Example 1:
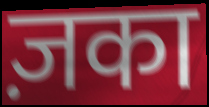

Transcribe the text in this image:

ज़का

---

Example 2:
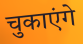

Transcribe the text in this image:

चुकाएंगे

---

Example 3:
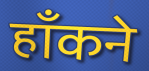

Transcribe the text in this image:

हाँकने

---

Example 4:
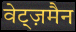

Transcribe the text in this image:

वेट्ज़मैन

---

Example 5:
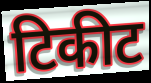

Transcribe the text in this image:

टिकीट